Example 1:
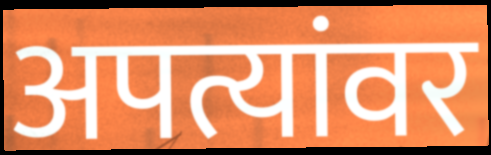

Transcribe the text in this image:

अपत्यांवर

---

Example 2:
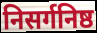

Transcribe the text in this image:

निसर्गनिष्ठ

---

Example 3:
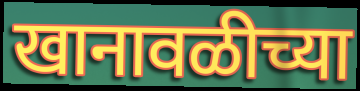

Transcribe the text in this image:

खानावळीच्या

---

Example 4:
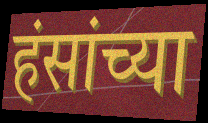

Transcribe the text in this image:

हंसांच्या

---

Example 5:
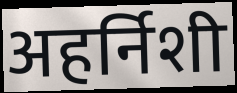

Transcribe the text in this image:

अहर्निशी